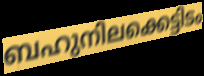
ബഹുനിലക്കെട്ടിടം